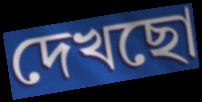
দেখছো